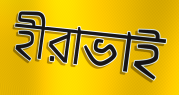
হীরাভাই